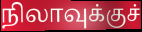
நிலாவுக்குச்